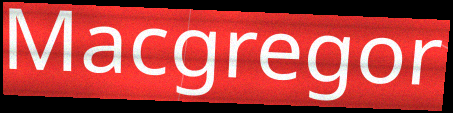
Macgregor